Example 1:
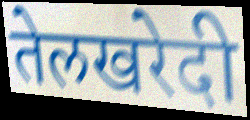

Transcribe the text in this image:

तेलखरेदी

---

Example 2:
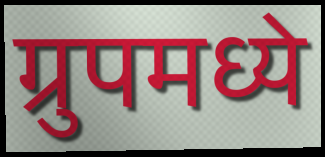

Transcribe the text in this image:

ग्रुपमध्ये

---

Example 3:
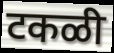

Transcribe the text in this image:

टकळी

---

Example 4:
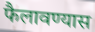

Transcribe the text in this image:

फैलावण्यास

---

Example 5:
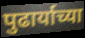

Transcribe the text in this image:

पुढार्याच्या